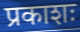
प्रकाशः